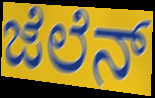
ಜೆಲೆನ್